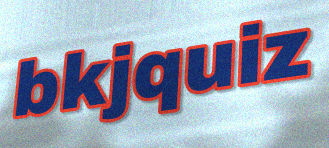
bkjquiz